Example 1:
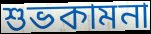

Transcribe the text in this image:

শুভকামনা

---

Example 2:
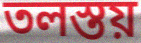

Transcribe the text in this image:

তলস্তয়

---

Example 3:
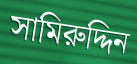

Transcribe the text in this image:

সামিরুদ্দিন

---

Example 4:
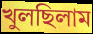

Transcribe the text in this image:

খুলছিলাম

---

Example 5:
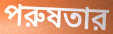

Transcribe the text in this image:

পরুষতার